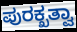
ಪುರಕ್ಖತ್ವಾ